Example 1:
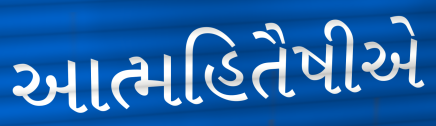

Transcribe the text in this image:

આત્મહિતૈષીએ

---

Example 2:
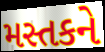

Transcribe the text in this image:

મસ્તકને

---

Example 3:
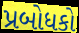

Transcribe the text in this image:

પ્રબોધકો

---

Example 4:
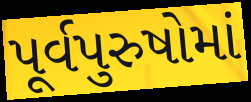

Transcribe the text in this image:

પૂર્વપુરુષોમાં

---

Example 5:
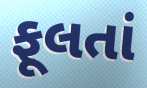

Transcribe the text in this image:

ફૂલતાં